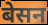
बेसन